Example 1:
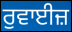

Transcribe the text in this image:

ਰੁਵਾਈਜ਼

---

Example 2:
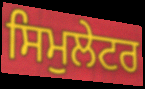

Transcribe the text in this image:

ਸਿਮੁਲੇਟਰ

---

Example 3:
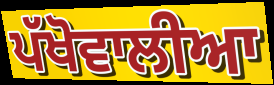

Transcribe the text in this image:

ਪੱਖੋਵਾਲੀਆ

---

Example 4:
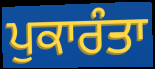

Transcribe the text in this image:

ਪੁਕਾਰੰਤਾ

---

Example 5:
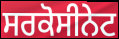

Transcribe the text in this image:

ਸਰਕੋਸੀਨੇਟ